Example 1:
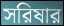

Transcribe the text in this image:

সরিষার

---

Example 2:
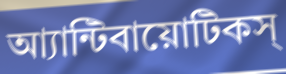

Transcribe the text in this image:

আ্যান্টিবায়োটিকস্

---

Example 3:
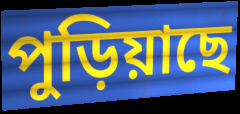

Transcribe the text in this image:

পুড়িয়াছে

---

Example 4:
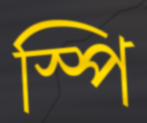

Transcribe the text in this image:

স্পি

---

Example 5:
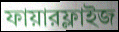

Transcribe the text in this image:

ফায়ারফ্লাইজ